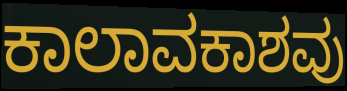
ಕಾಲಾವಕಾಶವು